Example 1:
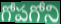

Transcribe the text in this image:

గోపగోని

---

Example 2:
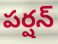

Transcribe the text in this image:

పర్షన్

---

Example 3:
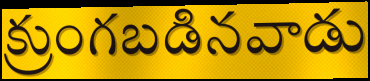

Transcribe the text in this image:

క్రుంగబడినవాడు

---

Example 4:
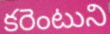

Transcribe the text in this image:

కరెంటుని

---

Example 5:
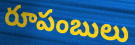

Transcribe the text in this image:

రూపంబులు